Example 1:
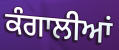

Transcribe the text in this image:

ਕੰਗਾਲੀਆਂ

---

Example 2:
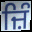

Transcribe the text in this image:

ਜ਼ਿੰ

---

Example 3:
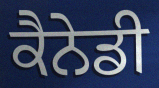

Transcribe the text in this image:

ਕੈਨੇਡੀ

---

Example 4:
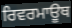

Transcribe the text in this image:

ਰਿਵਰਮਾਊਥ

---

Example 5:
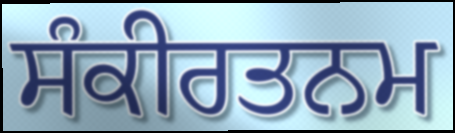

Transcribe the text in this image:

ਸੰਕੀਰਤਨਮ